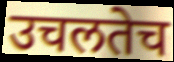
उचलतेच